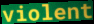
violent